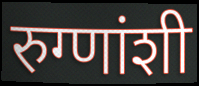
रुग्णांशी